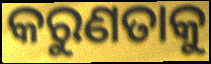
କରୁଣତାକୁ